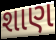
શાણ